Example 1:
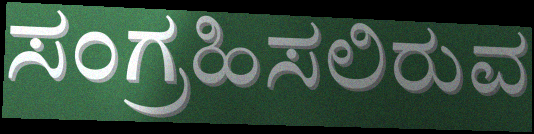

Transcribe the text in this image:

ಸಂಗ್ರಹಿಸಲಿರುವ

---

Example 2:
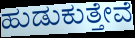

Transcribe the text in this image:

ಹುಡುಕುತ್ತೇವೆ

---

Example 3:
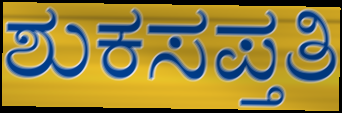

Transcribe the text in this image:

ಶುಕಸಪ್ತತಿ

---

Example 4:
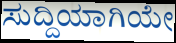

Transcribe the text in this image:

ಸುದ್ದಿಯಾಗಿಯೇ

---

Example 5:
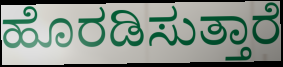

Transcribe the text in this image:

ಹೊರಡಿಸುತ್ತಾರೆ